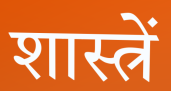
शास्त्रें